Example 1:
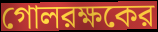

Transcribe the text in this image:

গোলরক্ষকের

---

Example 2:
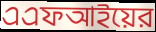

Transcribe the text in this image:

এএফআইয়ের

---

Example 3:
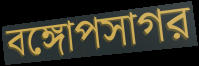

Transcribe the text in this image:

বঙ্গোপসাগর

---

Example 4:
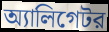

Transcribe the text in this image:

অ্যালিগেটর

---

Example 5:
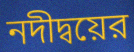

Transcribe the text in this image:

নদীদ্বয়ের